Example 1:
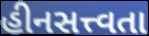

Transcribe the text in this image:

હીનસત્ત્વતા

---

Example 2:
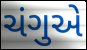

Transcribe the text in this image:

ચંગુએ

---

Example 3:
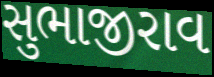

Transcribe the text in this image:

સુભાજીરાવ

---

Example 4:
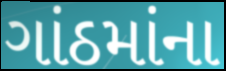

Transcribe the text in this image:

ગાંઠમાંના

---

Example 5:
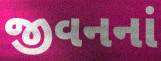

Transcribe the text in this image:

જીવનનાં